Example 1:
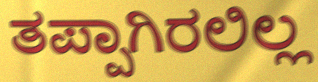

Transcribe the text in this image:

ತಪ್ಪಾಗಿರಲಿಲ್ಲ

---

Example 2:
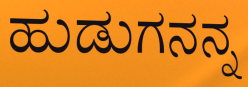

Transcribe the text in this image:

ಹುಡುಗನನ್ನ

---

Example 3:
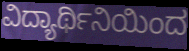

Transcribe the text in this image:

ವಿದ್ಯಾರ್ಥಿನಿಯಿಂದ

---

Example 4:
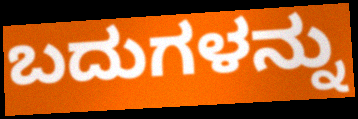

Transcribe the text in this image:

ಬದುಗಳನ್ನು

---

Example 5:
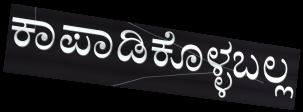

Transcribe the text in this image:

ಕಾಪಾಡಿಕೊಳ್ಳಬಲ್ಲ